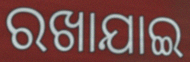
ରଖାଯାଇ